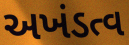
અખંડત્વ